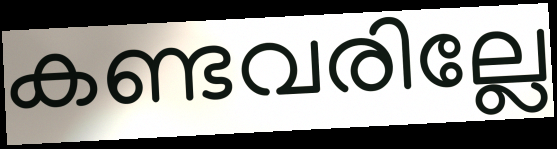
കണ്ടവരില്ലേ